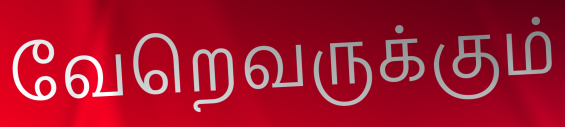
வேறெவருக்கும்